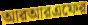
আরআরএফের